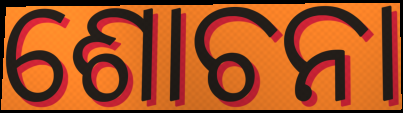
ଶୋଚନା